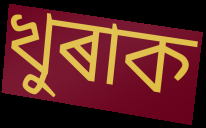
খুৰাক